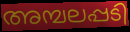
അമ്പലപ്പടി